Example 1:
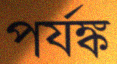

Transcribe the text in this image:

পর্যঙ্ক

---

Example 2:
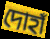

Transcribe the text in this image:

দোহাঁ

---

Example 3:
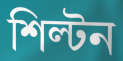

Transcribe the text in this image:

শিল্টন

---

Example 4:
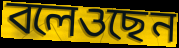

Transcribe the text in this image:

বলেওছেন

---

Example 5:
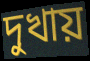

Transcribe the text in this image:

দুখায়